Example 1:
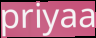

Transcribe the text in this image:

priyaa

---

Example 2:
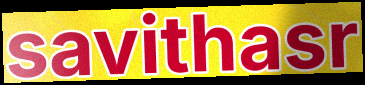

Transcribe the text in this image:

savithasr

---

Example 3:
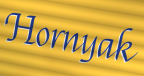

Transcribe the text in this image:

Hornyak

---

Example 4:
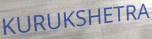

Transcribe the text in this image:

KURUKSHETRA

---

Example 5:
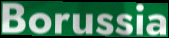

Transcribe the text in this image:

Borussia